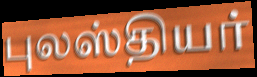
புலஸ்தியர்